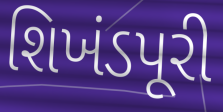
શિખંડપૂરી